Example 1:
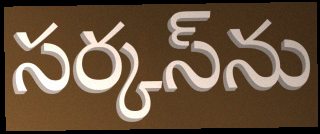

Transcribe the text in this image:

సర్కస్‌ను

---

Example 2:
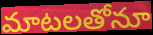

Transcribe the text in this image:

మాటలతోనూ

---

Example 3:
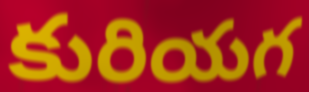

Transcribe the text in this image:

కురియగ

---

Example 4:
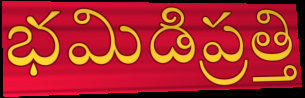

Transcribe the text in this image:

భమిడిప్రత్తి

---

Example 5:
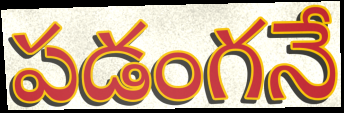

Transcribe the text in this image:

పడంగనే